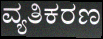
ವ್ಯತಿಕರಣ